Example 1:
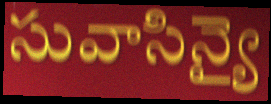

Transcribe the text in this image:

సువాసిన్యై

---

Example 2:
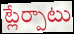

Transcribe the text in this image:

ట్లేర్పాటు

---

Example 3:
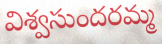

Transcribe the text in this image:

విశ్వసుందరమ్మ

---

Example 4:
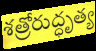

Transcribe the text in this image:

శత్రోరుద్ధృత్య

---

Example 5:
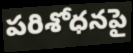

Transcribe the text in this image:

పరిశోధనపై